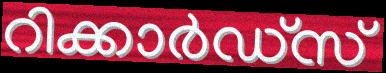
റിക്കാർഡ്സ്